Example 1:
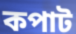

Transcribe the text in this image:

কপাট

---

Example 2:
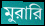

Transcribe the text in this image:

মুরারি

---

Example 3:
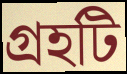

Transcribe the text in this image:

গ্রহটি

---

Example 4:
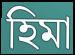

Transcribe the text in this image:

হিমা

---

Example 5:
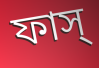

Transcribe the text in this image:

ফাস্